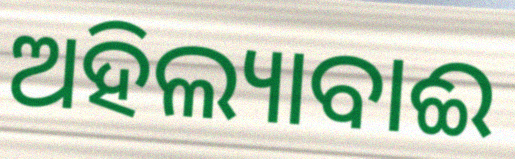
ଅହିଲ୍ୟାବାଈ